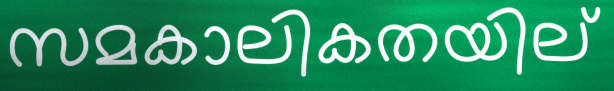
സമകാലികതയില്